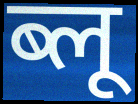
ब्लू